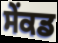
ਸੇਂਕਡ